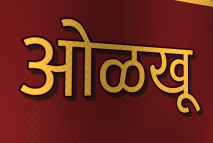
ओळखू